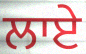
ਲਾਏ